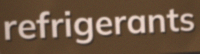
refrigerants